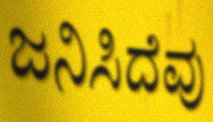
ಜನಿಸಿದೆವು